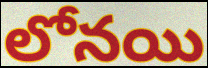
లోనయి